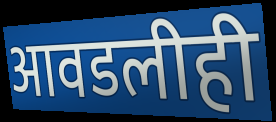
आवडलीही